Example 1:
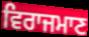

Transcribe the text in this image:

ਵਿਰਾਜਮਾਣ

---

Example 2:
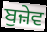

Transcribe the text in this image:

ਬੁਜ਼ੇਵ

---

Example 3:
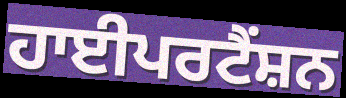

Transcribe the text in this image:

ਹਾਈਪਰਟੈਂਸ਼ਨ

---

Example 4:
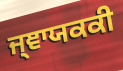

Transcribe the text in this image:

ਜ੍ਞਾਯਕਕੀ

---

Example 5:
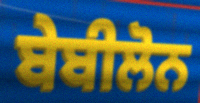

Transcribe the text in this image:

ਬੇਬੀਲੋਨ